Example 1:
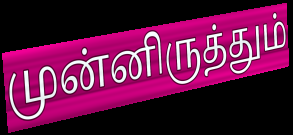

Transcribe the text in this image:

முன்னிருத்தும்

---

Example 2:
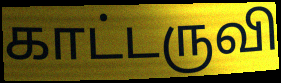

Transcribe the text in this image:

காட்டருவி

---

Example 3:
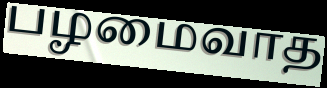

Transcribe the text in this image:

பழமைவாத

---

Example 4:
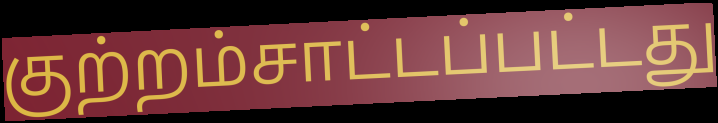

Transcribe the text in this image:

குற்றம்சாட்டப்பட்டது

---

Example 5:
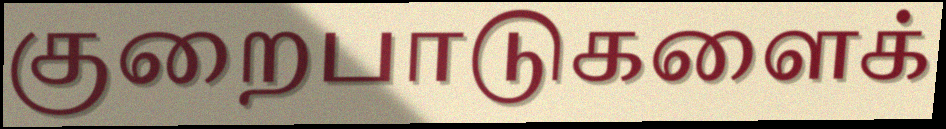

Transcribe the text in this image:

குறைபாடுகளைக்